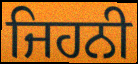
ਜਿਹਨੀ